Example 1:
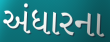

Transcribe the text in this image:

અંધારના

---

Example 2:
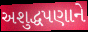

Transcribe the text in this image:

અશુદ્ધપણાને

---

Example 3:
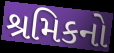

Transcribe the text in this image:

શ્રમિકનો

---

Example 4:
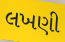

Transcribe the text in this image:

લખણી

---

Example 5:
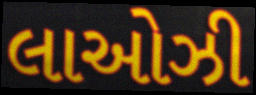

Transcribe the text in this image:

લાઓઝી